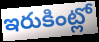
ఇరుకింట్లో